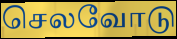
செலவோடு